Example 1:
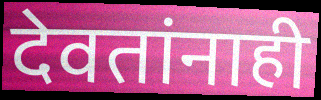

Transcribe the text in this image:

देवतांनाही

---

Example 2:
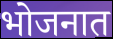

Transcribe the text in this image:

भोजनात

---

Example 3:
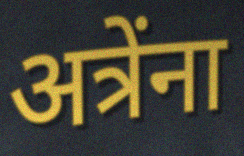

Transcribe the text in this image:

अत्रेंना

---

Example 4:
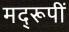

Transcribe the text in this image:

मद्‌रूपीं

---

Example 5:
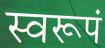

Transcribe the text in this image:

स्वरूपं